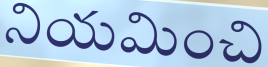
నియమించి